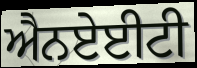
ਐਨਏਈਟੀ